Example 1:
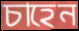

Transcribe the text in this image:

চাহেন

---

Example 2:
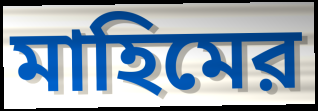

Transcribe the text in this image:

মাহিমের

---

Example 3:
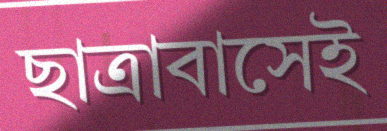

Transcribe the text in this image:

ছাত্রাবাসেই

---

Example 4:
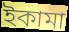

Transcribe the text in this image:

ইকামা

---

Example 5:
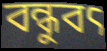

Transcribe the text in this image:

বন্ধুবৎ